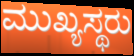
ಮುಖ್ಯಸ್ಥರು